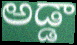
అడ్డా